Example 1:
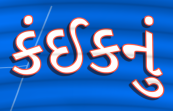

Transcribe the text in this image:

કંઈકનું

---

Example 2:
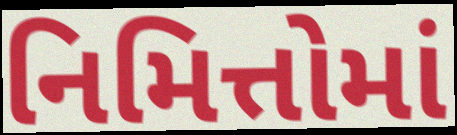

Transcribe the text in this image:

નિમિત્તોમાં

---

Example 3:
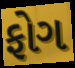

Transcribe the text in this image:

ફોગ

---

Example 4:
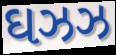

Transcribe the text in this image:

ઘઝઝ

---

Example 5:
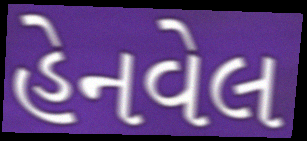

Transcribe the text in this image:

હેનવેલ